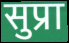
सुप्रा